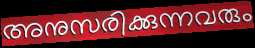
അനുസരിക്കുന്നവരും